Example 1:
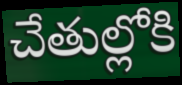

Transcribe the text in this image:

చేతుల్లోకి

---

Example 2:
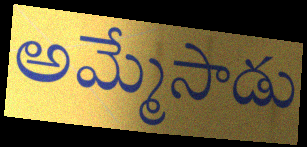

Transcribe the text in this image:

అమ్మేసాడు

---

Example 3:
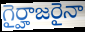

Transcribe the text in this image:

గైర్హాజరైనా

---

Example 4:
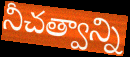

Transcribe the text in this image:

నీచత్వాన్ని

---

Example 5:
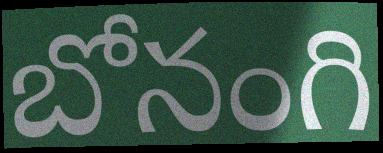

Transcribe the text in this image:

బోనంగి